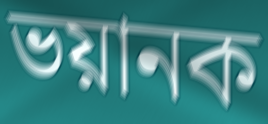
ভয়ানক